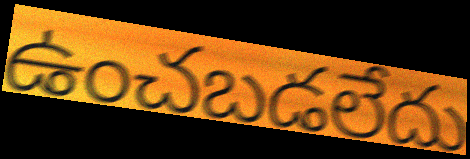
ఉంచబడలేదు